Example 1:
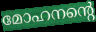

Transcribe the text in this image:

മോഹനന്റെ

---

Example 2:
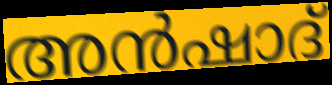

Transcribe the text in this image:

അൻഷാദ്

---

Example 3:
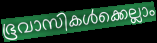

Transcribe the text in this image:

ഭൂവാസികൾക്കെല്ലാം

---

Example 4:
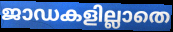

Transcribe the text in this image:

ജാഡകളില്ലാതെ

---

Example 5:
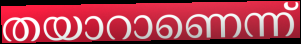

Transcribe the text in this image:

തയാറാണെന്ന്